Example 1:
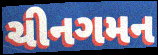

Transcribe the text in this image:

ચીનગમન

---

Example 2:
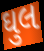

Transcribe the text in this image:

ઘુલ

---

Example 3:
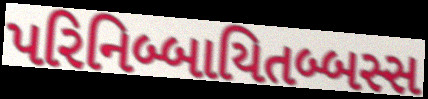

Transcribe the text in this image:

પરિનિબ્બાયિતબ્બસ્સ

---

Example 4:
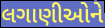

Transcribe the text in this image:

લગાણીઓને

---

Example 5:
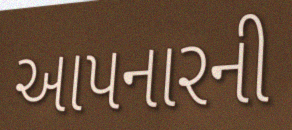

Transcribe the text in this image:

આપનારની